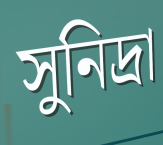
সুনিদ্রা